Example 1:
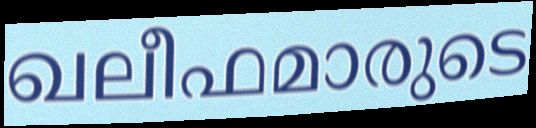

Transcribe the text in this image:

ഖലീഫമാരുടെ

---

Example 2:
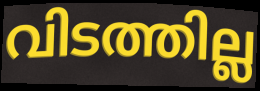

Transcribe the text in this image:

വിടത്തില്ല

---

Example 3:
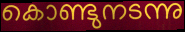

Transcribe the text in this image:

കൊണ്ടുനടന്നു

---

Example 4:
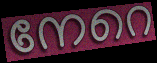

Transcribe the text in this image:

നേറെ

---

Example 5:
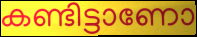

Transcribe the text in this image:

കണ്ടിട്ടാണോ